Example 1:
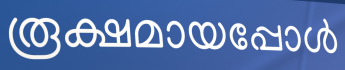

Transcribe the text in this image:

രൂക്ഷമായപ്പോൾ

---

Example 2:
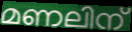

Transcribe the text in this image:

മണലിന്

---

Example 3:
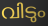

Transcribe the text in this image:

വിടും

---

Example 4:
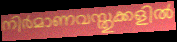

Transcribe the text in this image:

നിർമാണവസ്തുക്കളിൽ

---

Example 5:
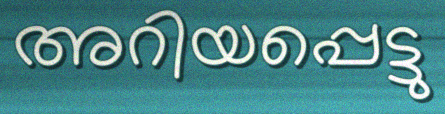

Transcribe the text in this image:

അറിയപ്പെട്ടു